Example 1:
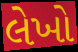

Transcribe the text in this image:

લેખો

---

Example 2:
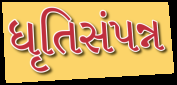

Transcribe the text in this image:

ધૃતિસંપન્ન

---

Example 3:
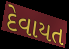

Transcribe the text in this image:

દેવાયત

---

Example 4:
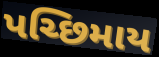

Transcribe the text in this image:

પચ્છિમાય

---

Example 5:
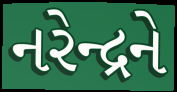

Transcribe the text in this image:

નરેન્દ્રને